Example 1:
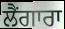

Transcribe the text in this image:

ਲੈਂਗਾਰਾ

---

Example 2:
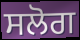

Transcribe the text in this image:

ਸਲੋਗ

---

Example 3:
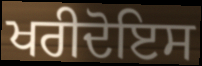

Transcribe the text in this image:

ਖਰੀਦੋਇਸ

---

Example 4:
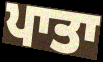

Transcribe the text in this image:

ਪਾਤਾ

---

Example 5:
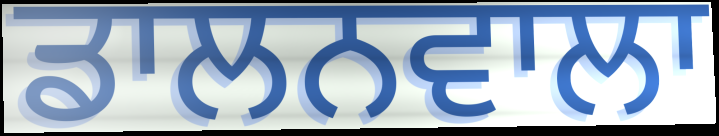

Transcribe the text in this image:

ਡਾਲਨਵਾਲਾ